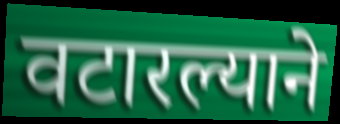
वटारल्याने